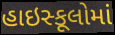
હાઇસ્કૂલોમાં